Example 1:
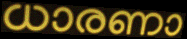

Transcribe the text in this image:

ധാരണാ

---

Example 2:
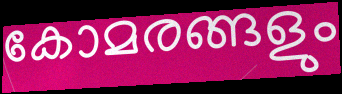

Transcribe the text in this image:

കോമരങ്ങളും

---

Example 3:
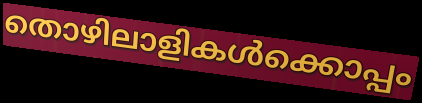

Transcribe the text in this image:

തൊഴിലാളികൾക്കൊപ്പം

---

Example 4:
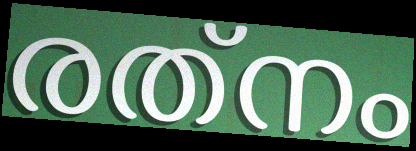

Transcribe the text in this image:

രത്‌നം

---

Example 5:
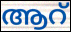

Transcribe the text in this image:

ആറ്